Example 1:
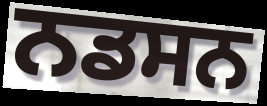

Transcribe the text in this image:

ਨਡਸਨ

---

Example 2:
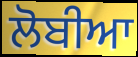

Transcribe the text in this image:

ਲੋਬੀਆ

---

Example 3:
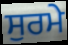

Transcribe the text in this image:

ਸੁਰਮੇ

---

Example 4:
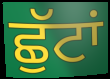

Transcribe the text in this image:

ਛੁੱਟਾਂ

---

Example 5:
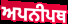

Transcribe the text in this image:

ਅਪਨੀਪਥ